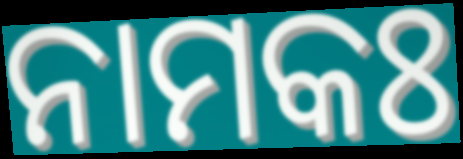
ନାମକଃ